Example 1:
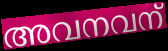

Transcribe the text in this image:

അവനവന്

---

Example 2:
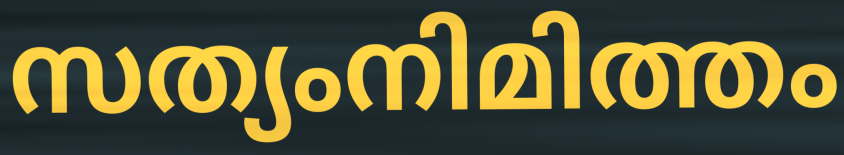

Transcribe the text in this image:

സത്യംനിമിത്തം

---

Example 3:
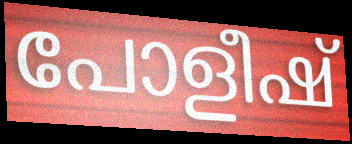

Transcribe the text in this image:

പോളീഷ്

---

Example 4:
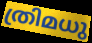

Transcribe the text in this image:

ത്രിമധു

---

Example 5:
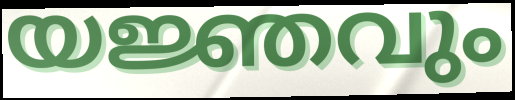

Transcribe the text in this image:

യജ്ഞവും